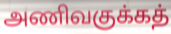
அணிவகுக்கத்